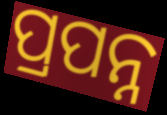
ପ୍ରପନ୍ନ